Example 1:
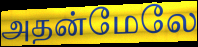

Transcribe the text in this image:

அதன்மேலே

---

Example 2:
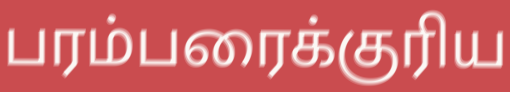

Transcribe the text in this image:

பரம்பரைக்குரிய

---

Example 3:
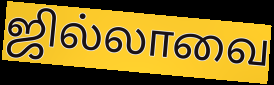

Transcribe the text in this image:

ஜில்லாவை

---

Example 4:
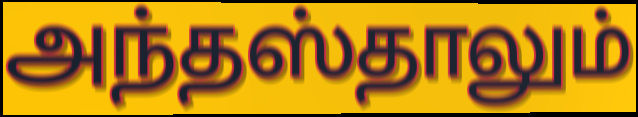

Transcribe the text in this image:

அந்தஸ்தாலும்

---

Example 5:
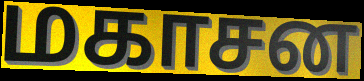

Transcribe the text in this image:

மகாசன